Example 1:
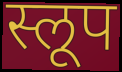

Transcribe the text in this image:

स्लूप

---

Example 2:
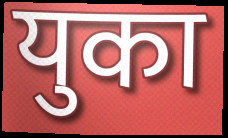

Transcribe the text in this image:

युका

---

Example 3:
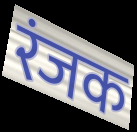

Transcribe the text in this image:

रंजक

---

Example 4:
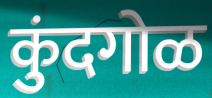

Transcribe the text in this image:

कुंदगोळ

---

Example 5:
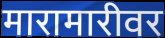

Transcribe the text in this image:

मारामारीवर